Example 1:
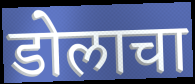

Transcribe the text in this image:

डोलाचा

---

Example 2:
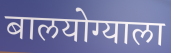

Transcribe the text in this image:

बालयोग्याला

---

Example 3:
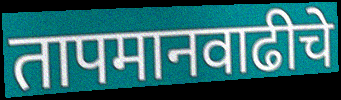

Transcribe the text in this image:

तापमानवाढीचे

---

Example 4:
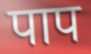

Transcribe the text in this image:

पाप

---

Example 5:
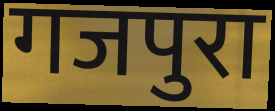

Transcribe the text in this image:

गजपुरा